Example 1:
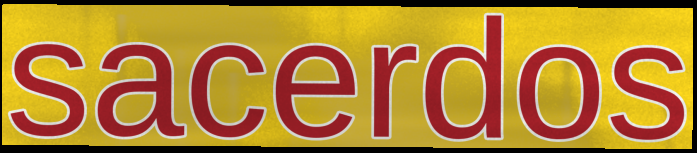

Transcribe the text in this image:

sacerdos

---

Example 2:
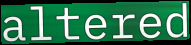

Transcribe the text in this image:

altered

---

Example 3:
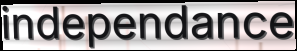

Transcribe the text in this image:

independance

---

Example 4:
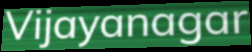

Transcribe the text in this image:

Vijayanagar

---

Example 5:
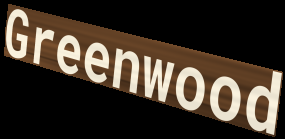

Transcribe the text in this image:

Greenwood